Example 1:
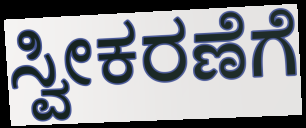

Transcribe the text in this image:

ಸ್ವೀಕರಣೆಗೆ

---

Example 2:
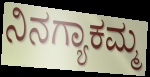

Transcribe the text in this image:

ನಿನಗ್ಯಾಕಮ್ಮ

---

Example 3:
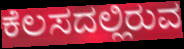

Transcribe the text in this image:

ಕೆಲಸದಲ್ಲಿರುವ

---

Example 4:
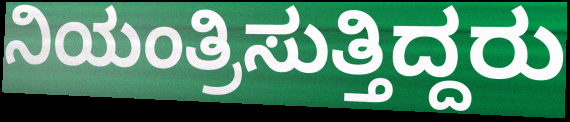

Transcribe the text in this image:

ನಿಯಂತ್ರಿಸುತ್ತಿದ್ದರು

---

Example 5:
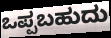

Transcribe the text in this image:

ಒಪ್ಪಬಹುದು